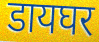
डायघर